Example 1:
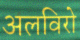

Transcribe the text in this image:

अलविरो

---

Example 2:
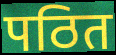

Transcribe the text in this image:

पठित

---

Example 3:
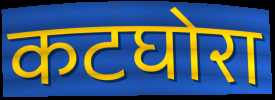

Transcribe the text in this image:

कटघोरा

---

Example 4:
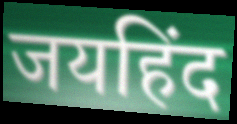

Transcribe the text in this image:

जयहिंद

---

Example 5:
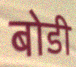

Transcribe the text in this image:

बोडी